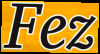
Fez